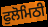
ਫੁਲੋਮਿਠੀ